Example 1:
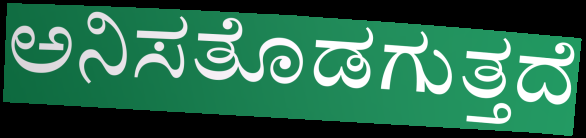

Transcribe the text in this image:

ಅನಿಸತೊಡಗುತ್ತದೆ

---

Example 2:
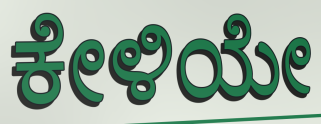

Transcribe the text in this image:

ಕೇಳಿಯೇ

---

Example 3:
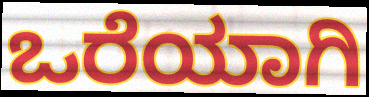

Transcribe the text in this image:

ಒರೆಯಾಗಿ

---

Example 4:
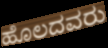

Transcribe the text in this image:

ಹೊಲದವರು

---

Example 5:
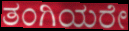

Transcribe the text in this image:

ತಂಗಿಯರೇ